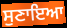
ਸੁਣਾਇਆ